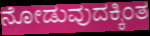
ನೋಡುವುದಕ್ಕಿಂತ